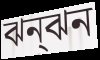
ঝন্ঝন